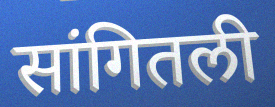
सांगितली